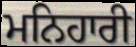
ਮਨਿਹਾਰੀ